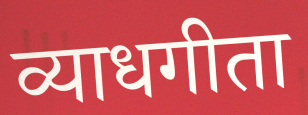
व्याधगीता